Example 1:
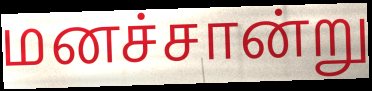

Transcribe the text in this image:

மனச்சான்று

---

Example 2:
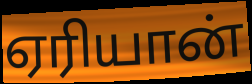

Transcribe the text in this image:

ஏரியான்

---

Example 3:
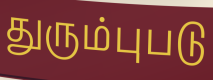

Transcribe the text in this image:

துரும்புபடு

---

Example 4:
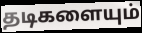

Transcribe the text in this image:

தடிகளையும்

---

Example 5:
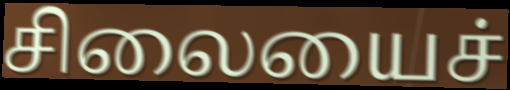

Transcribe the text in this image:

சிலையைச்